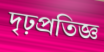
দৃঢ়প্রতিজ্ঞ